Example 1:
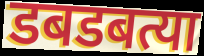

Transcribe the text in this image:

डबडबत्या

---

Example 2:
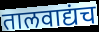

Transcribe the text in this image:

तालवाद्यंच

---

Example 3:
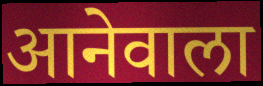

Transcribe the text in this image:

आनेवाला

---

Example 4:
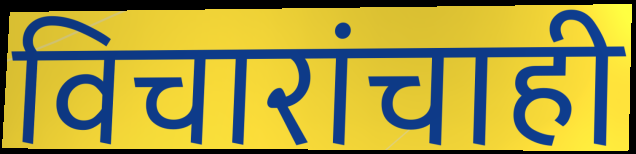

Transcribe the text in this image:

विचारांचाही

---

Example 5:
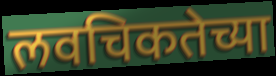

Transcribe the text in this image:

लवचिकतेच्या